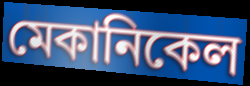
মেকানিকেল